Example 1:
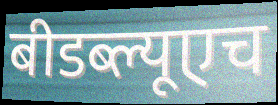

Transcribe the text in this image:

बीडब्ल्यूएच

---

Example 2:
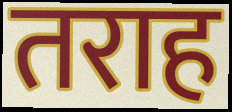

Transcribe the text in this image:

तराह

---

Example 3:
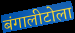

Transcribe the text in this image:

बंगालीटोला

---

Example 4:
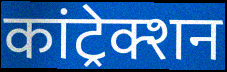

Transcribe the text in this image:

कांट्रेक्शन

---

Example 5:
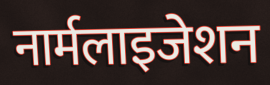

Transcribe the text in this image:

नार्मलाइजेशन